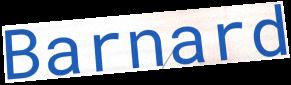
Barnard